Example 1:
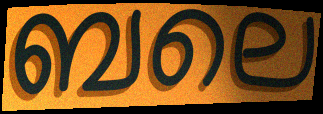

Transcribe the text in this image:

ബലെ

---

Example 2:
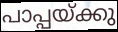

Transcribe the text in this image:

പാപ്പയ്ക്കു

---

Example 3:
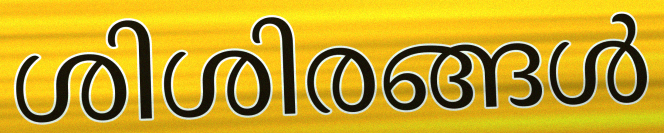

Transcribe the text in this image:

ശിശിരങ്ങൾ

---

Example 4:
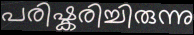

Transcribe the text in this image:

പരിഷ്കരിച്ചിരുന്നു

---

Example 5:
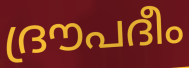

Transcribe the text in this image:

ദ്രൗപദീം